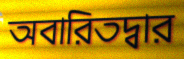
অবারিতদ্বার